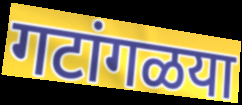
गटांगळया